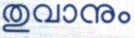
തുവാനും